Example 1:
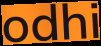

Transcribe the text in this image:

odhi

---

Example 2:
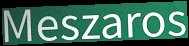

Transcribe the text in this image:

Meszaros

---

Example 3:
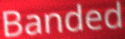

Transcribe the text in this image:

Banded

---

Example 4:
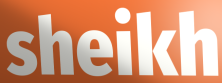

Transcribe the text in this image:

sheikh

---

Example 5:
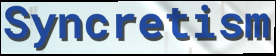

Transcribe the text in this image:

Syncretism